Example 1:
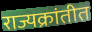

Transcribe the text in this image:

राज्यक्रांतीत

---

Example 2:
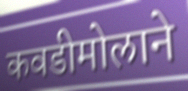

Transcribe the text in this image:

कवडीमोलाने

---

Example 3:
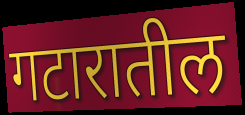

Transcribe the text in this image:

गटारातील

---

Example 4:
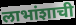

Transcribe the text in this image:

लाभांशाची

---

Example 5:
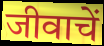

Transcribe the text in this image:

जीवाचें